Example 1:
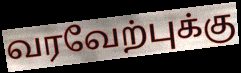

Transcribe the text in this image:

வரவேற்புக்கு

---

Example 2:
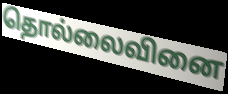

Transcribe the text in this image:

தொல்லைவினை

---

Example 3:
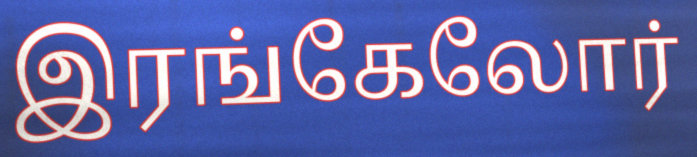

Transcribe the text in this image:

இரங்கேலோர்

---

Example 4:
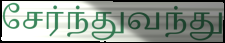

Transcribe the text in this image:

சேர்ந்துவந்து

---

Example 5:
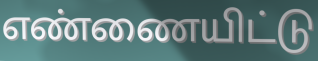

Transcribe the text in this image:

எண்ணையிட்டு